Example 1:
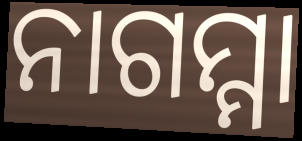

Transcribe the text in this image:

ନାଗମ୍ମା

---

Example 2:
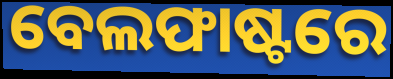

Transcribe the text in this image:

ବେଲଫାଷ୍ଟରେ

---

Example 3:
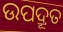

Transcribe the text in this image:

ଉପଦ୍ରୂତ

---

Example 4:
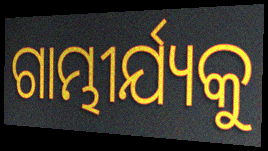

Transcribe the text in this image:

ଗାମ୍ଭୀର୍ଯ୍ୟକୁ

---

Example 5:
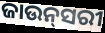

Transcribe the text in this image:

ଜାଉନ୍‌ସରୀ